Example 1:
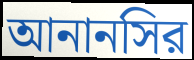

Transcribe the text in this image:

আনানসির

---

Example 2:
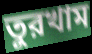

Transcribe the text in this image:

তুরখাম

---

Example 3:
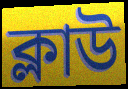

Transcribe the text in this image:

ক্লাউ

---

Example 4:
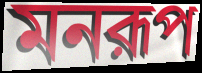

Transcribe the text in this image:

মনরূপ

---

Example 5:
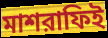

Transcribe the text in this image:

মাশরাফিই